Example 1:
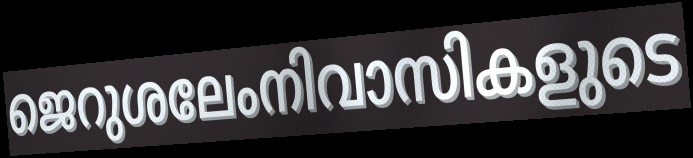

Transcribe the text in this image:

ജെറുശലേംനിവാസികളുടെ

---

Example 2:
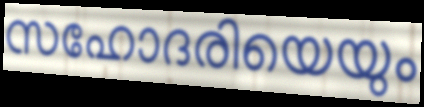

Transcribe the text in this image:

സഹോദരിയെയും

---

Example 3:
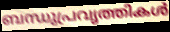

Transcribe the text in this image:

ബന്ധുപ്രവൃത്തികൾ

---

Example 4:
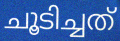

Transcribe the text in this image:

ചൂടിച്ചത്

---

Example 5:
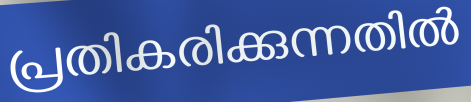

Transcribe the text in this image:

പ്രതികരിക്കുന്നതിൽ